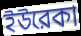
ইউরেকা